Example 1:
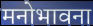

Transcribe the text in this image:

मनोभावना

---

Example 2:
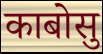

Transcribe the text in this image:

काबोसु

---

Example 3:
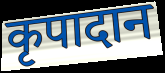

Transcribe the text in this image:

कृपादान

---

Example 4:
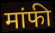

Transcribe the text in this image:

मांफी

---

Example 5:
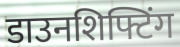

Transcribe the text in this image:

डाउनशिफ्टिंग